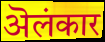
ऄलंकार